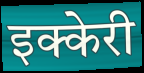
इक्केरी